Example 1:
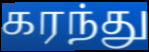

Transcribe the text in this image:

கரந்து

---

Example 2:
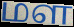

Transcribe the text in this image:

மள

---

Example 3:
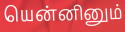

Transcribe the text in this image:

யென்னினும்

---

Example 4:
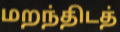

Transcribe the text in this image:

மறந்திடத்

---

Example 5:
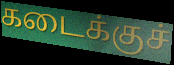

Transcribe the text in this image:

கடைக்குச்